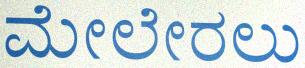
ಮೇಲೇರಲು